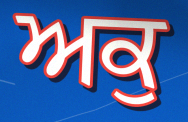
ਅਕੁ